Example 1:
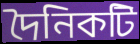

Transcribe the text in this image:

দৈনিকটি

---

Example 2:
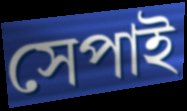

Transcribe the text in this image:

সেপাই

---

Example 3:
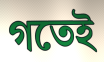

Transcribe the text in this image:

গতেই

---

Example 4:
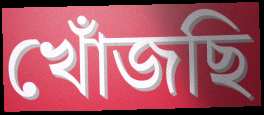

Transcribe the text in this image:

খোঁজছি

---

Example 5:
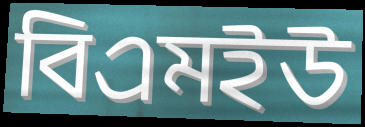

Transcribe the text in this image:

বিএমইউ